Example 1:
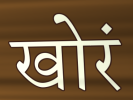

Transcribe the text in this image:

खोरं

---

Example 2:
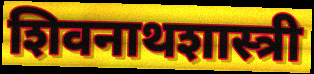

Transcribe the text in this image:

शिवनाथशास्त्री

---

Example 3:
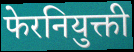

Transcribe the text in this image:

फेरनियुक्ती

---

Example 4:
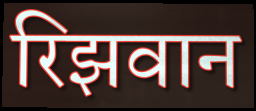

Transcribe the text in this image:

रिझवान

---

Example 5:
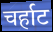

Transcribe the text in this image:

चर्हाट